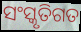
ସଂସ୍କୃତିଗତ